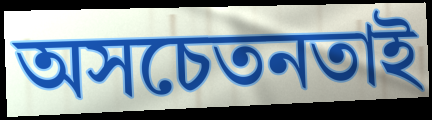
অসচেতনতাই